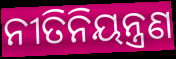
ନୀତିନିୟନ୍ତ୍ରଣ